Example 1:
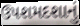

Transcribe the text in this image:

ઉપશમદશાનું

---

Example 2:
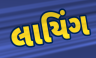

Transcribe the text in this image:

લાયિંગ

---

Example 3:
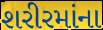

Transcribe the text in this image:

શરીરમાંના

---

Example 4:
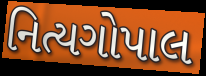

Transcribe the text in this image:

નિત્યગોપાલ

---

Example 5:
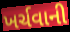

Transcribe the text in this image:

ખર્ચવાની